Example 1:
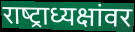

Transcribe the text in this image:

राष्ट्राध्यक्षांवर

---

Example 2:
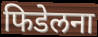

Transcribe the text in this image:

फिडेलना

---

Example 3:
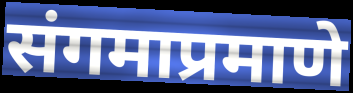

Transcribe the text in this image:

संगमाप्रमाणे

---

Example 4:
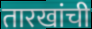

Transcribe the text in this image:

तारखांची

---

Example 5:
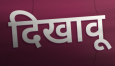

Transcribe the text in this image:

दिखावू